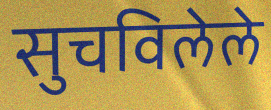
सुचविलेले